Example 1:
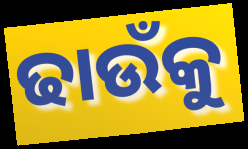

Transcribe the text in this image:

ଢାଉଁକୁ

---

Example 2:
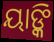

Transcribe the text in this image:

ୟାଙ୍କି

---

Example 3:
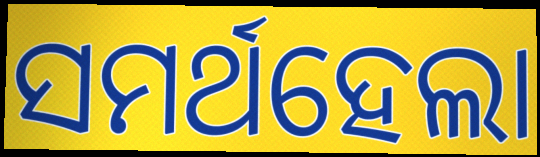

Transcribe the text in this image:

ସମର୍ଥହେଲା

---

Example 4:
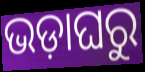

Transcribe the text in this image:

ଭଡ଼ାଘରୁ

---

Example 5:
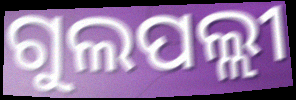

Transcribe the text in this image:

ଗୁଲପଲ୍ଲୀ